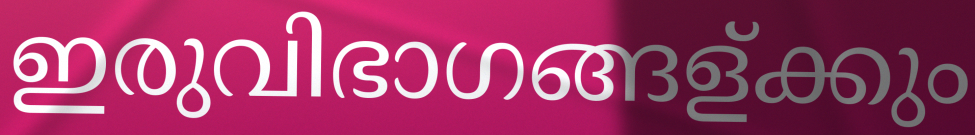
ഇരുവിഭാഗങ്ങള്ക്കും